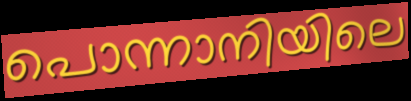
പൊന്നാനിയിലെ